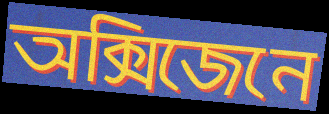
অক্সিজেনে